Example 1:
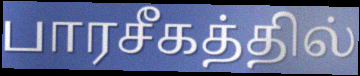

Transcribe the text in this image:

பாரசீகத்தில்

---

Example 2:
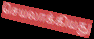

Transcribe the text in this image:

செயலாக்கியது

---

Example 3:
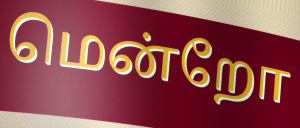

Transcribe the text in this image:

மென்றோ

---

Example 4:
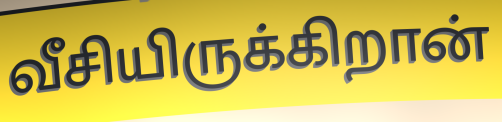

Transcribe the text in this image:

வீசியிருக்கிறான்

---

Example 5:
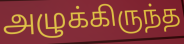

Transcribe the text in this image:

அழுக்கிருந்த